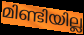
മിണ്ടിയില്ല